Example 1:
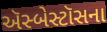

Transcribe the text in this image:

ઍસ્બેસ્ટૉસના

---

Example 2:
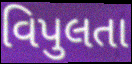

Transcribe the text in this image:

વિપુલતા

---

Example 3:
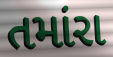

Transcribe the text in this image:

તમાંરા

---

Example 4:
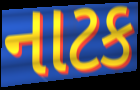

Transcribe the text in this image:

નાટક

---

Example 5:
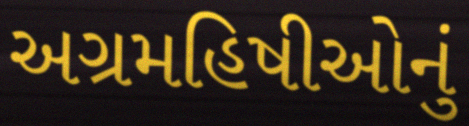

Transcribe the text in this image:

અગ્રમહિષીઓનું